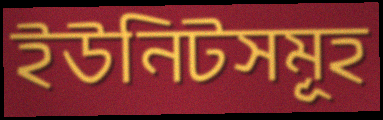
ইউনিটসমূহ